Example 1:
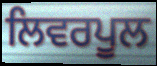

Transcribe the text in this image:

ਲਿਵਰਪੂਲ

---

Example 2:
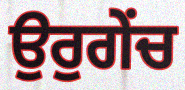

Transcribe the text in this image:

ਉਰੁਗੇਂਚ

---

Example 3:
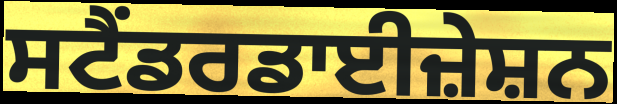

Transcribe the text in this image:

ਸਟੈਂਡਰਡਾਈਜ਼ੇਸ਼ਨ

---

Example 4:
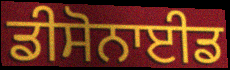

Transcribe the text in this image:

ਡੀਸੋਨਾਈਡ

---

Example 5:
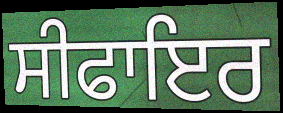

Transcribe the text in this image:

ਸੀਫਾਇਰ